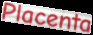
Placenta